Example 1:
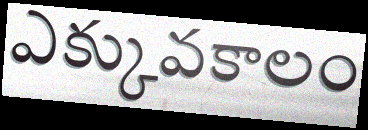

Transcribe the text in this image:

ఎక్కువకాలం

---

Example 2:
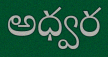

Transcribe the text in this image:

అధ్వర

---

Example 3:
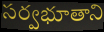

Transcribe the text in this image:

సర్వభూతాని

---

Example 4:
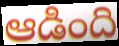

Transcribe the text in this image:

ఆడింది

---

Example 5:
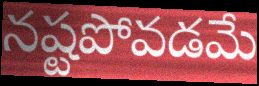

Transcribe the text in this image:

నష్టపోవడమే